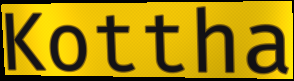
Kottha